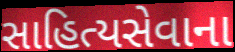
સાહિત્યસેવાના